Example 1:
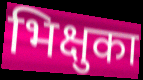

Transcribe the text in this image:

भिक्षुका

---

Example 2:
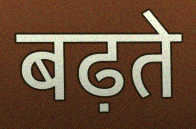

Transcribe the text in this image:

बढ़ते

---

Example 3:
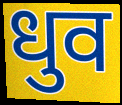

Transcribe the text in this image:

धुव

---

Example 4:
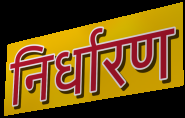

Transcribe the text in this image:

निर्धारण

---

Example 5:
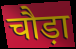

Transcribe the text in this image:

चौड़ा